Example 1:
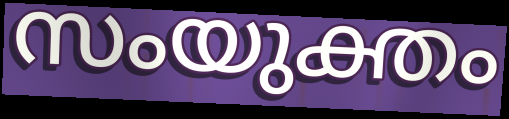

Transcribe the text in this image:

സംയുക്തം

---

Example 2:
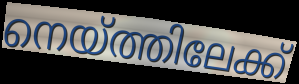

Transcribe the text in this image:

നെയ്ത്തിലേക്ക്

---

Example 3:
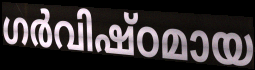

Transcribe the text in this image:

ഗർവിഷ്ഠമായ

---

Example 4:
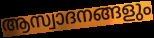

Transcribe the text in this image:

ആസ്വാദനങ്ങളും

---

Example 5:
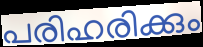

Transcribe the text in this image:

പരിഹരിക്കും